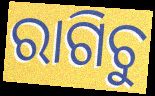
ରାଗିଚୁ